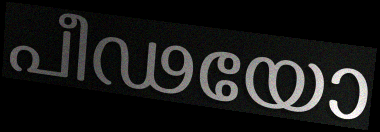
പീഢയോ